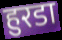
हुरडा